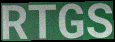
RTGS